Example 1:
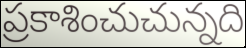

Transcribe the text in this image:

ప్రకాశించుచున్నది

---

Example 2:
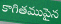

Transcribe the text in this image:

కాగితముపైన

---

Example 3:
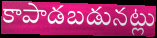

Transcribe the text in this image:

కాపాడబడునట్లు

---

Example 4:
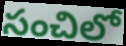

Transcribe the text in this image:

సంచిలో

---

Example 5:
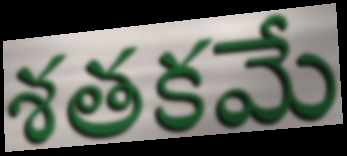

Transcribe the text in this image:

శతకమే